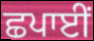
ਛਪਾਈਂ